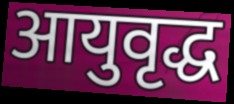
आयुवृद्ध